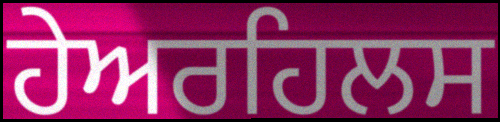
ਹੇਅਰਹਿਲਸ